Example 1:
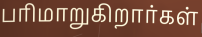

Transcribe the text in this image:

பரிமாறுகிறார்கள்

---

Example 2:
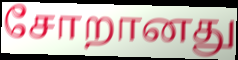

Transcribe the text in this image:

சோறானது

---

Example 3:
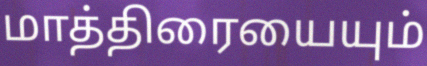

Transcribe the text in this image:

மாத்திரையையும்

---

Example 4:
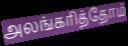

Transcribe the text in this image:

அலங்கரித்தோம்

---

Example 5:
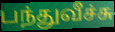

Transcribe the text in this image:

பந்துவீச்சு